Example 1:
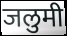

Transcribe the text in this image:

जलुमी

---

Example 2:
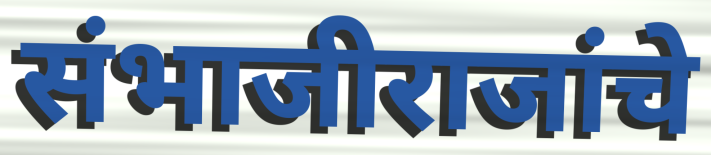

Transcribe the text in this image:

संभाजीराजांचे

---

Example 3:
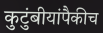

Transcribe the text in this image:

कुटुंबीयांपैकीच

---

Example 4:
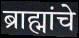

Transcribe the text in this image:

ब्राह्मांचे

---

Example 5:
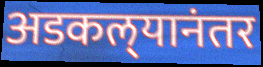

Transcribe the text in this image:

अडकल्यानंतर